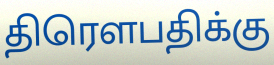
திரௌபதிக்கு